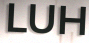
LUH